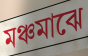
মঞ্চমাঝে